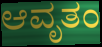
ಆವೃತಂ